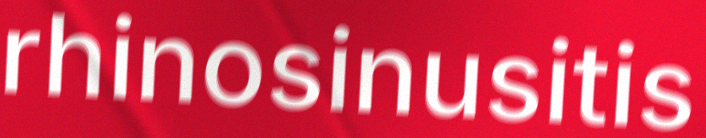
rhinosinusitis